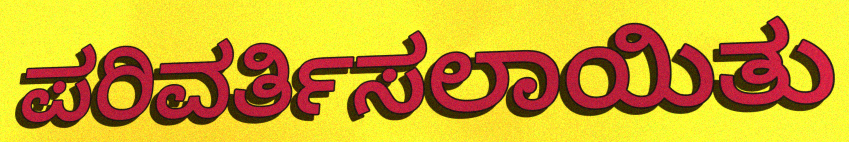
ಪರಿವರ್ತಿಸಲಾಯಿತು